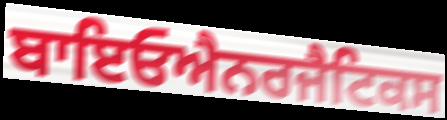
ਬਾਇਓਐਨਰਜੈਟਿਕਸ